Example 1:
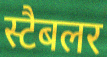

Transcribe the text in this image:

स्टैबलर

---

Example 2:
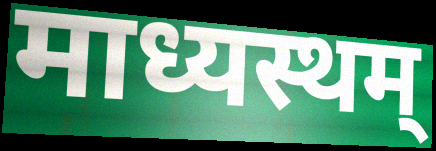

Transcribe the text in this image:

माध्यस्थम्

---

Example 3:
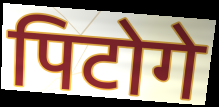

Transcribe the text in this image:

पिटोगे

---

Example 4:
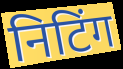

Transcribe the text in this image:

निटिंग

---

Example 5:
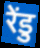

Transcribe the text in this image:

रेंडु